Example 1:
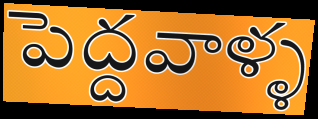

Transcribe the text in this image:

పెద్దవాళ్ళ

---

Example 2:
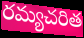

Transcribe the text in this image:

రమ్యచరిత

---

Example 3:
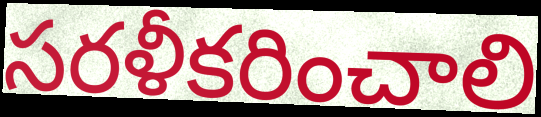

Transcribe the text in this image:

సరళీకరించాలి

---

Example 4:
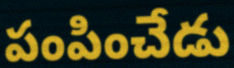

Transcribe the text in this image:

పంపించేడు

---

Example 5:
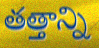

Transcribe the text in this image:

తత్తాన్ని